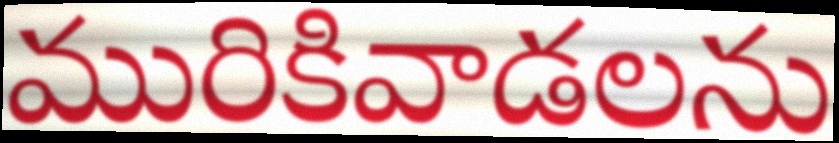
మురికివాడలను